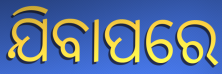
ଯିବାପରେ